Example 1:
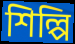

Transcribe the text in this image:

শিল্পি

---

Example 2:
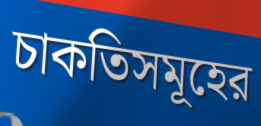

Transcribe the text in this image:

চাকতিসমূহের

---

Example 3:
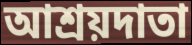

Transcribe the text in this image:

আশ্রয়দাতা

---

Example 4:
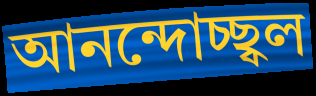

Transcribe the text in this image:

আনন্দোচ্ছ্বল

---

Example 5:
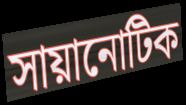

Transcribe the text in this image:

সায়ানোটিক